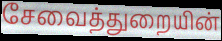
சேவைத்துறையின்